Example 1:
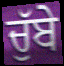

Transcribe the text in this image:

ਚੁੱਬੇ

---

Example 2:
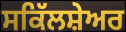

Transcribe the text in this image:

ਸਕਿੱਲਸ਼ੇਅਰ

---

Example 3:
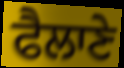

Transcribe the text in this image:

ਫੈਲਾਣੇ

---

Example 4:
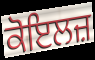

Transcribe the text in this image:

ਕੋਇਲਜ਼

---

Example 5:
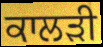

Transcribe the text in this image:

ਕਾਲੜੀ